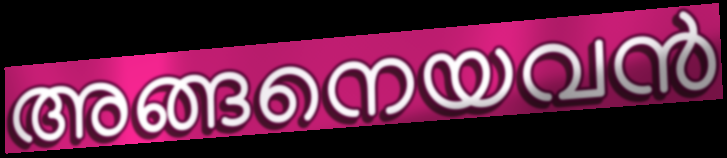
അങ്ങനെയവൻ